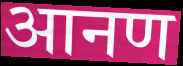
आनण